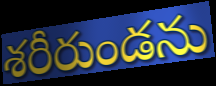
శరీరుండను